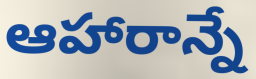
ఆహారాన్నే